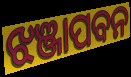
ଝଞ୍ଜାପବନ